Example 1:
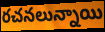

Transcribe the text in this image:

రచనలున్నాయి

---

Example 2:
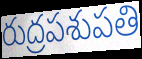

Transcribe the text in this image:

రుద్రపశుపతి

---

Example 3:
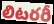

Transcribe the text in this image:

లిటరరీ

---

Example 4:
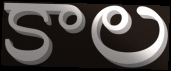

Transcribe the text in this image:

కాల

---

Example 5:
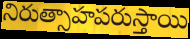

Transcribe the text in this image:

నిరుత్సాహపరుస్తాయి